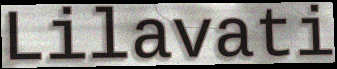
Lilavati